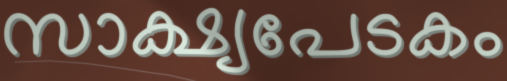
സാക്ഷ്യപേടകം